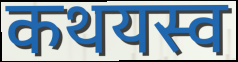
कथयस्व